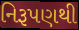
નિરૂપણથી